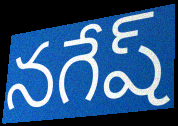
నగేష్